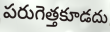
పరుగెత్తకూడదు